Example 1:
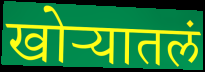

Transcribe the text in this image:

खोऱ्यातलं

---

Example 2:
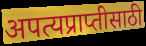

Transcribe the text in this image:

अपत्यप्राप्तीसाठी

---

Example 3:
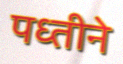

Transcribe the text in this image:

पध्तीने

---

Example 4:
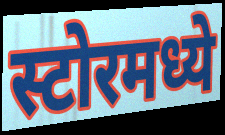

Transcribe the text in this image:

स्टोरमध्ये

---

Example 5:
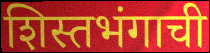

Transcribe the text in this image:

शिस्तभंगाची